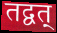
तद्वत्